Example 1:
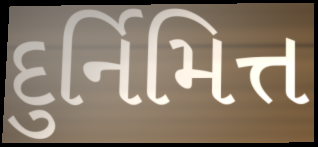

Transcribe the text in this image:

દુર્નિમિત્ત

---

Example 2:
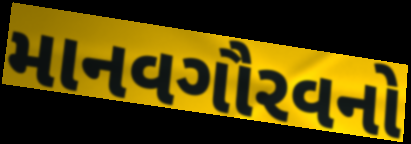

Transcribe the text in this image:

માનવગૌરવનો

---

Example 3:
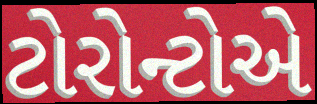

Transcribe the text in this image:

ટોરોન્ટોએ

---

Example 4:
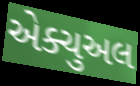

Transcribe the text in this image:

એક્ચુઅલ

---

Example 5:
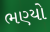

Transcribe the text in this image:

ભણ્યો